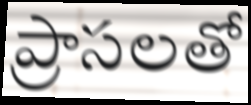
ప్రాసలతో